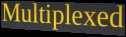
Multiplexed